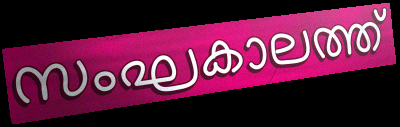
സംഘകാലത്ത്